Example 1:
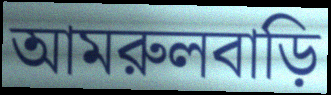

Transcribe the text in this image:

আমরুলবাড়ি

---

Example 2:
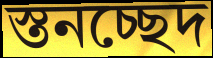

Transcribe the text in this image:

স্তনচ্ছেদ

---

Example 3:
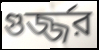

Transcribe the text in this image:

গুর্জ্জর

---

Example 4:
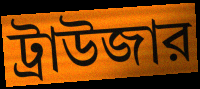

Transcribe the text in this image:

ট্রাউজার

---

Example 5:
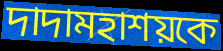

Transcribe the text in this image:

দাদামহাশয়কে